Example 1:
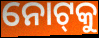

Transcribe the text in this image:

ନୋଟ୍‌କୁ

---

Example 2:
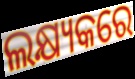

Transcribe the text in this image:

ଲକ୍ଷ୍ୟକରେ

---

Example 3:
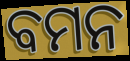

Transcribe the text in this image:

ବମନ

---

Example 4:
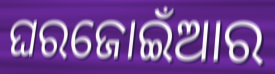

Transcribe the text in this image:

ଘରଜୋଇଁଆର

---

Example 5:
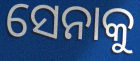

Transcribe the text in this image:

ସେନାକୁ